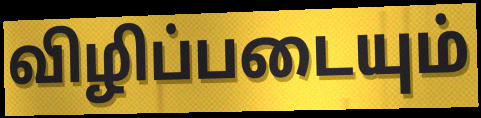
விழிப்படையும்